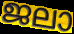
ജലാ